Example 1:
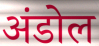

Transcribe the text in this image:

अंडोल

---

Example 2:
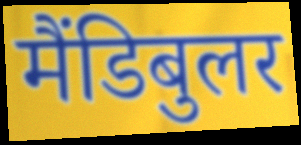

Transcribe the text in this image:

मैंडिबुलर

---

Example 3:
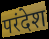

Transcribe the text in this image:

परंदेश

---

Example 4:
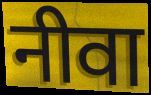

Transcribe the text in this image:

नीवा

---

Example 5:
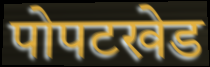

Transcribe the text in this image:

पोपटखेड